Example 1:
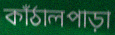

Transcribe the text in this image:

কাঁঠালপাড়া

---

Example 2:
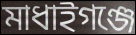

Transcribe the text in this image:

মাধাইগঞ্জে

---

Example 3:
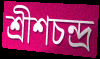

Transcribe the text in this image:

শ্রীশচন্দ্র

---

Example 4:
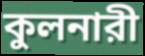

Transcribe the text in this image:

কুলনারী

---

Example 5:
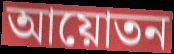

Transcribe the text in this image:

আয়োতন